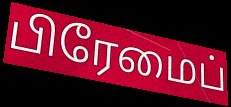
பிரேமைப்